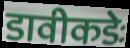
डावीकडेः